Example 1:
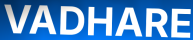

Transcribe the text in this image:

VADHARE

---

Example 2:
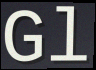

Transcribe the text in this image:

Gl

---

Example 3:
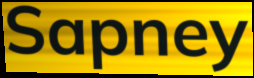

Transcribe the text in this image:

Sapney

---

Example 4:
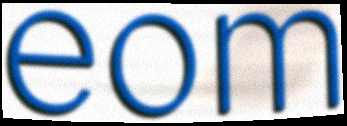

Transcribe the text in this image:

eom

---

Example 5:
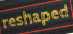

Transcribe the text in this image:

reshaped